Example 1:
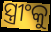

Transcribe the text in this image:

ସ୍ତ୍ରୀଂକୁ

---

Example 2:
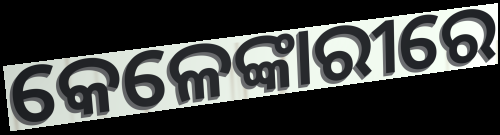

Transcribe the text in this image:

କେଳେଙ୍କାରୀରେ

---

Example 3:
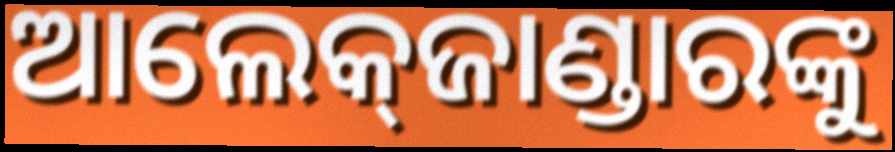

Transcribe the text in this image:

ଆଲେକ୍‌ଜାଣ୍ଡାରଙ୍କୁ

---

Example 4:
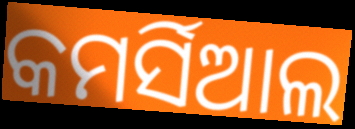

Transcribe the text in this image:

କମର୍ସିଆଲ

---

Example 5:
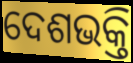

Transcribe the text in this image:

ଦେଶଭକ୍ତି